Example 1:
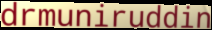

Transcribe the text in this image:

drmuniruddin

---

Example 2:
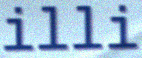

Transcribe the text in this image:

illi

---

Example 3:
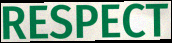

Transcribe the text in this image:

RESPECT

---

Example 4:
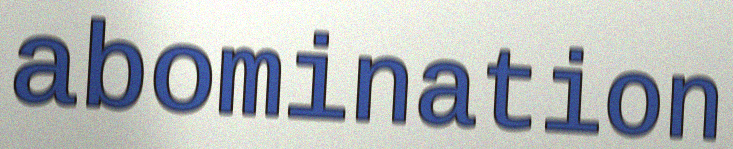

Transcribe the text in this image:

abomination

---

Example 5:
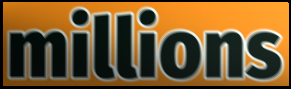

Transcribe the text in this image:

millions